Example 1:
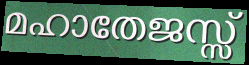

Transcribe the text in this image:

മഹാതേജസ്സ്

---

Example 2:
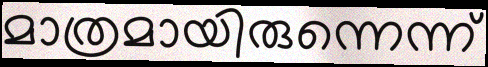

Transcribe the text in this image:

മാത്രമായിരുന്നെന്ന്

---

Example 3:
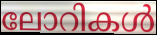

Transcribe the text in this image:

ലോറികൾ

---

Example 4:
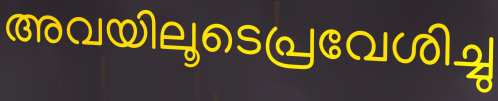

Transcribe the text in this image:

അവയിലൂടെപ്രവേശിച്ചു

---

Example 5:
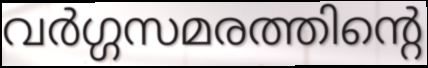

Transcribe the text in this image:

വർഗ്ഗസമരത്തിന്റെ